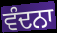
ਵੰਦਨਾ